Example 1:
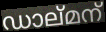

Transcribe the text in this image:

ഡാല്മന്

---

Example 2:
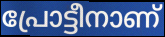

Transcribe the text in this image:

പ്രോട്ടീനാണ്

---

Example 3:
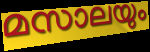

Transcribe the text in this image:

മസാലയും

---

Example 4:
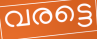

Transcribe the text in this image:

വരട്ടെ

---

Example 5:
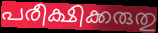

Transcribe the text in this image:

പരീക്ഷിക്കരുതു